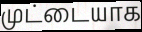
முட்டையாக